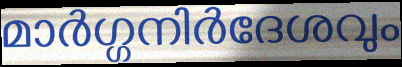
മാർഗ്ഗനിർദേശവും